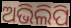
ଅଭିଲିପି